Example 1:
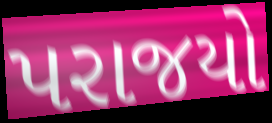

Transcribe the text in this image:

પરાજયો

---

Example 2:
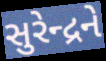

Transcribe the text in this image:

સુરેન્દ્રને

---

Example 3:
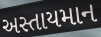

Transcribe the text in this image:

અસ્તાયમાન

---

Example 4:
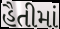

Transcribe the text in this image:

હૈતીમાં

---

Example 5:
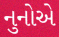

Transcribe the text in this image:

નુનોએ